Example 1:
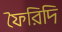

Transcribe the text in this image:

ফৈরিদি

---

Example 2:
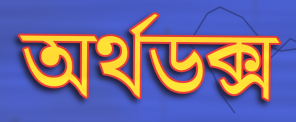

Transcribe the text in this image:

অর্থডক্স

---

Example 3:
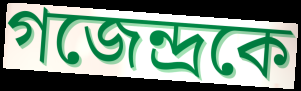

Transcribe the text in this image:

গজেন্দ্রকে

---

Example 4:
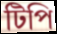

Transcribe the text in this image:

টিপি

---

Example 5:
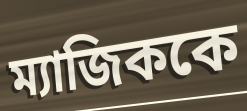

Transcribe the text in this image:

ম্যাজিককে